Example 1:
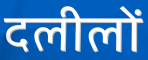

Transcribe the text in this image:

दलीलों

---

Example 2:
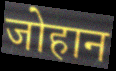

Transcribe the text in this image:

जोहान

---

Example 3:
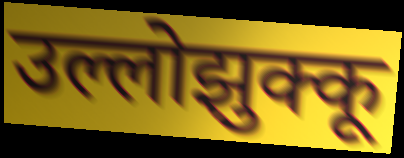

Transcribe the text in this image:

उल्लोझुक्कू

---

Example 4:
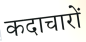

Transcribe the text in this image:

कदाचारों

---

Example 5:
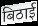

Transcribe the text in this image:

बिठाई